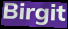
Birgit